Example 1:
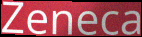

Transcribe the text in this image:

Zeneca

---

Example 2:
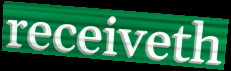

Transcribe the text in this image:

receiveth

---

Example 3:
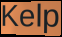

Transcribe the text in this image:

Kelp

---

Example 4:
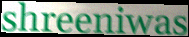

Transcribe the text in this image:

shreeniwas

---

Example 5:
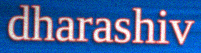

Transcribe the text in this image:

dharashiv